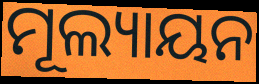
ମୂଲ୍ୟାୟନ